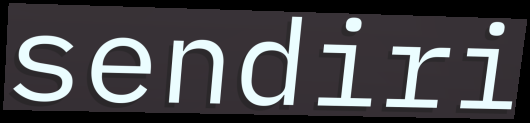
sendiri